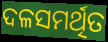
ଦଳସମର୍ଥିତ